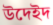
উদেইদ